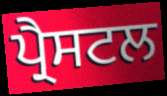
ਪ੍ਰੈਸਟਲ